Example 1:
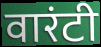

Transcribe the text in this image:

वारंटी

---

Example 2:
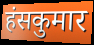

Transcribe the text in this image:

हंसकुमार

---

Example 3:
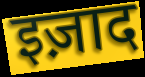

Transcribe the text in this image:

इज़ाद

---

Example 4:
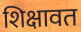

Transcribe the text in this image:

शिक्षावत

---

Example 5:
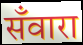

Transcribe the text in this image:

सँवारा